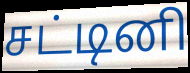
சட்டினி